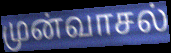
முன்வாசல்